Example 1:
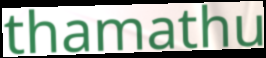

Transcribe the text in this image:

thamathu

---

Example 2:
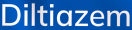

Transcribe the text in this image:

Diltiazem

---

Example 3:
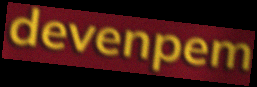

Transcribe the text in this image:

devenpem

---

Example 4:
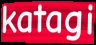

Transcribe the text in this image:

katagi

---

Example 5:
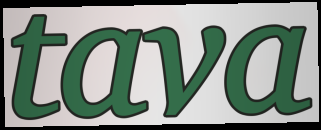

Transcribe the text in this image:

tava